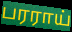
பரராய்